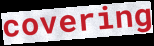
covering